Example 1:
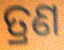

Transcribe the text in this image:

ତ୍ରଣ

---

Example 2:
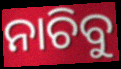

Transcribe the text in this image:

ନାଚିବୁ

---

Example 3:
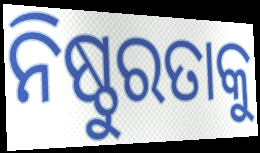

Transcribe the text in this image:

ନିଷ୍ଠୁରତାକୁ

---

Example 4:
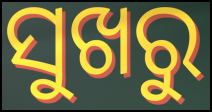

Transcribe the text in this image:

ସୁଖରୁ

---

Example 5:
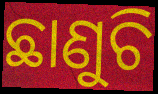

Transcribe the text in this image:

ଛାଣୁଚି